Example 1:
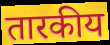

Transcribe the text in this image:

तारकीय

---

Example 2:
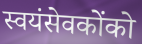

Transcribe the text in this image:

स्वयंसेवकोंको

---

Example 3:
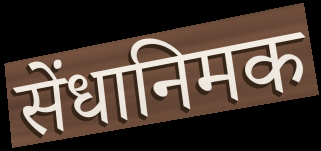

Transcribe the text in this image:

सेंधानिमक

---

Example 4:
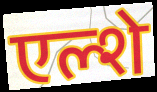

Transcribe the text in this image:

एल्शे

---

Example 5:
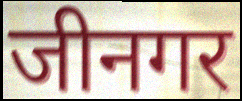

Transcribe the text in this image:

जीनगर